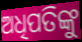
ଅଧିପତିଙ୍କୁ